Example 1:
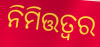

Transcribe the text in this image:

ନିମିତ୍ତତ୍ଵର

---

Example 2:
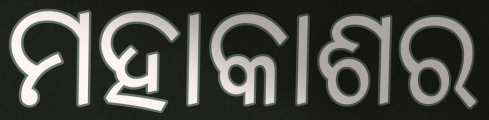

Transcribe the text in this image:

ମହାକାଶର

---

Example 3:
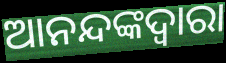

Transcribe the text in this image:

ଆନନ୍ଦଙ୍କଦ୍ୱାରା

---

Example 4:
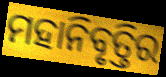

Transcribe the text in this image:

ମହାନିବୃତ୍ତିର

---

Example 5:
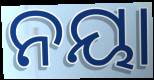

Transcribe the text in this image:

ନୟା